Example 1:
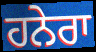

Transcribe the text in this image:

ਹਨੇਰਾ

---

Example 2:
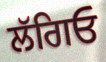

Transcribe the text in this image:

ਲੱਗਿਓ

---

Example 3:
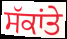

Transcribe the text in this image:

ਸੱਕਾਂਤੇ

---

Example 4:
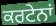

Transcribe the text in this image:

ਕਰਟੇਨਾਂ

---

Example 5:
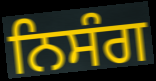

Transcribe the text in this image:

ਨਿਸੰਗ